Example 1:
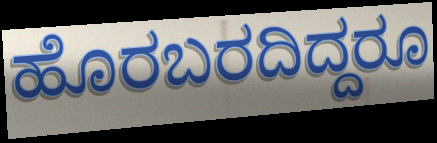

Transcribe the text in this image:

ಹೊರಬರದಿದ್ದರೂ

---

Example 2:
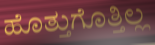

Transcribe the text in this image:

ಹೊತ್ತುಗೊತ್ತಿಲ್ಲ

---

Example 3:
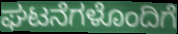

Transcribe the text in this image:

ಘಟನೆಗಳೊಂದಿಗೆ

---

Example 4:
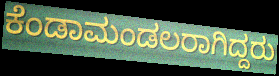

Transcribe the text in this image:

ಕೆಂಡಾಮಂಡಲರಾಗಿದ್ದರು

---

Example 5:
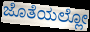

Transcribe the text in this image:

ಜೊತೆಯಲ್ಲೋ